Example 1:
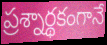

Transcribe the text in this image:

ప్రశ్నార్థకంగానే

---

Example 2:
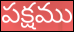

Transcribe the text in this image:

పక్షము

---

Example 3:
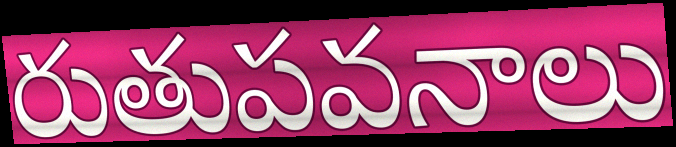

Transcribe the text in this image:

రుతుపవనాలు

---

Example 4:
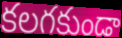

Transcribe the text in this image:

కలగకుండా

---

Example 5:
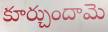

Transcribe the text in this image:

కూర్చుందామె